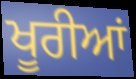
ਖੂਰੀਆਂ